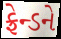
ફ્રેન્ડને